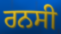
ਰਨਸੀ